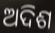
ଅଦିଶ